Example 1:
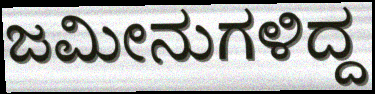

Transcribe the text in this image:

ಜಮೀನುಗಳಿದ್ದ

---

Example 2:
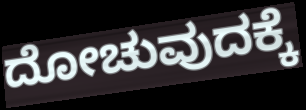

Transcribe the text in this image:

ದೋಚುವುದಕ್ಕೆ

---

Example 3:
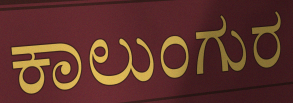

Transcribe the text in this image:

ಕಾಲುಂಗುರ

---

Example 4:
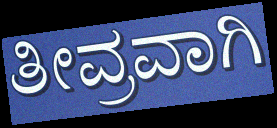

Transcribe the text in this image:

ತೀವ್ರವಾಗಿ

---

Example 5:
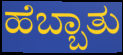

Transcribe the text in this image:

ಹೆಬ್ಬಾತು